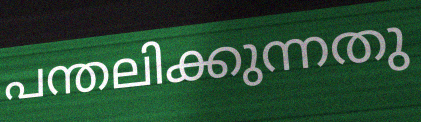
പന്തലിക്കുന്നതു